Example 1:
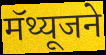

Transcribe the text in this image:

मॅथ्यूजने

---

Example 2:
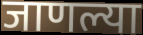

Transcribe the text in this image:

जाणल्या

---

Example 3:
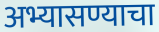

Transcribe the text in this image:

अभ्यासण्याचा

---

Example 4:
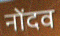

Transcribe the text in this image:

नोंदव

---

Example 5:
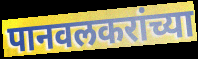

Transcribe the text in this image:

पानवलकरांच्या